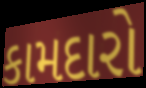
કામદારો